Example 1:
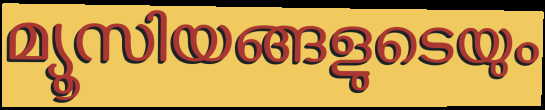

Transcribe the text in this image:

മ്യൂസിയങ്ങളുടെയും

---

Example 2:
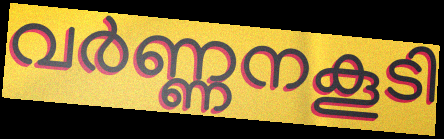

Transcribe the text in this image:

വർണ്ണനകൂടി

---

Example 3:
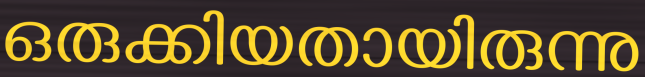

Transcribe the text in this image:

ഒരുക്കിയതായിരുന്നു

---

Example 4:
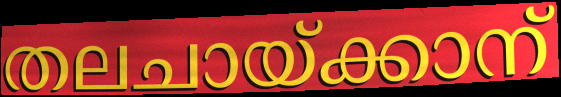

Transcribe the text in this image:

തലചായ്ക്കാന്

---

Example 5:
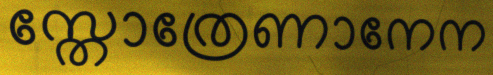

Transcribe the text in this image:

സ്തോത്രേണാനേന